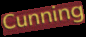
Cunning